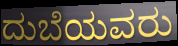
ದುಬೆಯವರು